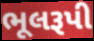
ભૂલરૂપી